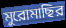
মুরোমাছির